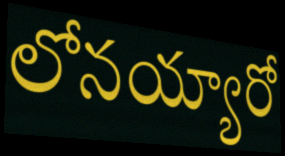
లోనయ్యారో